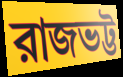
রাজভট্ট